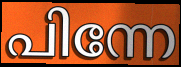
പിന്നേ